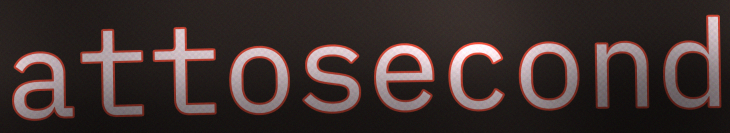
attosecond